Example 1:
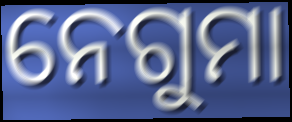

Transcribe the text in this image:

ନେଗୁମା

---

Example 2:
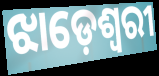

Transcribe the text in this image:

ଝାଡ଼େଶ୍ୱରୀ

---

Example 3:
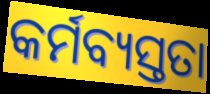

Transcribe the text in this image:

କର୍ମବ୍ୟସ୍ତତା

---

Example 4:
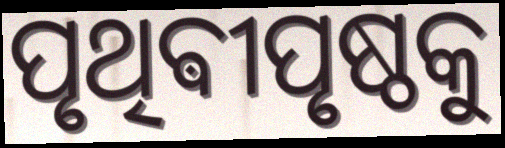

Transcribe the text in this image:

ପୃଥିଵୀପୃଷ୍ଠକୁ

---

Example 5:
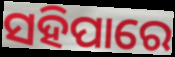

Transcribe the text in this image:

ସହିପାରେ